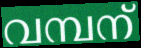
വമ്പന്